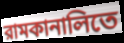
রামকানালিতে